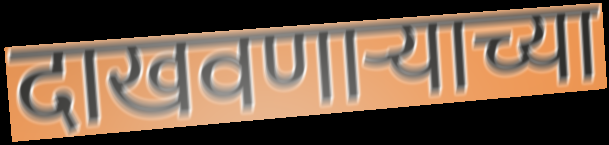
दाखवणाऱ्याच्या